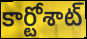
కార్టోశాట్